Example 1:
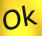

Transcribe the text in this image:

Ok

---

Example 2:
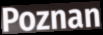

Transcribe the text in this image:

Poznan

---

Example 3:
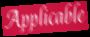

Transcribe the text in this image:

Applicable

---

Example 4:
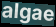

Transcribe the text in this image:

algae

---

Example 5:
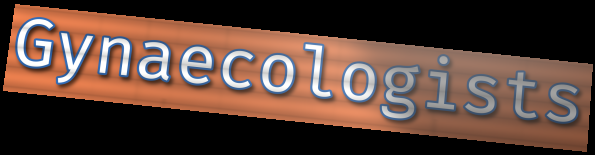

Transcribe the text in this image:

Gynaecologists